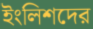
ইংলিশদের